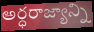
అర్ధరాజ్యాన్ని